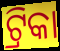
ଟ୍ରିକା